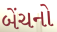
બેંચનો